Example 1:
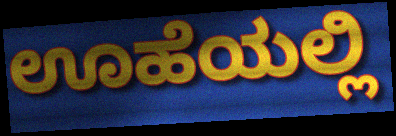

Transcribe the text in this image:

ಊಹೆಯಲ್ಲಿ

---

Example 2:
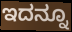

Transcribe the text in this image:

ಇದನ್ನೂ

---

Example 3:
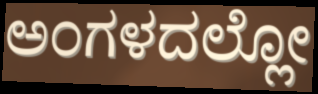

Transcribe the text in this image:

ಅಂಗಳದಲ್ಲೋ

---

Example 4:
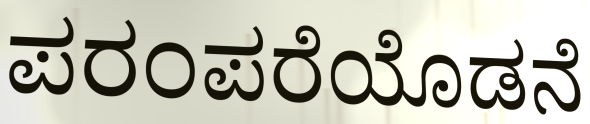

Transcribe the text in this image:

ಪರಂಪರೆಯೊಡನೆ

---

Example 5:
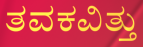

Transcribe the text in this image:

ತವಕವಿತ್ತು